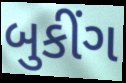
બુકીંગ